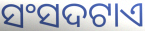
ସଂସଦଟାଏ